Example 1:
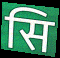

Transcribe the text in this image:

सि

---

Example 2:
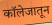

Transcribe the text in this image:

कॉलेजातून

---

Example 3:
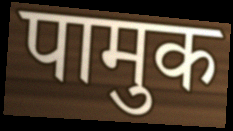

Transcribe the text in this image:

पामुक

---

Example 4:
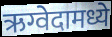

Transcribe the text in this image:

ऋग्वेदामध्ये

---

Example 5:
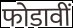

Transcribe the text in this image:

फोडावीं